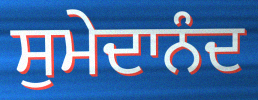
ਸੁਮੇਦਾਨੰਦ